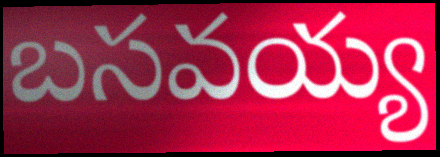
బసవయ్య